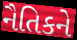
નૈતિકને